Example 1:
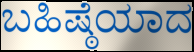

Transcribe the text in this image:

ಬಹಿಷ್ಠೆಯಾದ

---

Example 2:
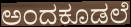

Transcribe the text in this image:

ಅಂದಕೂಡಲೆ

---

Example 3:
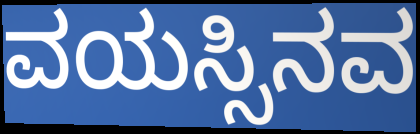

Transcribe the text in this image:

ವಯಸ್ಸಿನವ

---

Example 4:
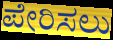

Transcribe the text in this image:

ಪೇರಿಸಲು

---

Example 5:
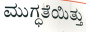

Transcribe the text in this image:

ಮುಗ್ಧತೆಯಿತ್ತು